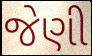
જેણી